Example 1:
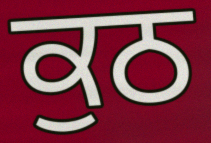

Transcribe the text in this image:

ਕੁਠ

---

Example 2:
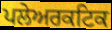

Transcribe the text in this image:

ਪਲੇਅਰਕਟਿਕ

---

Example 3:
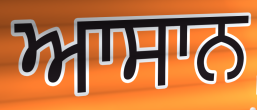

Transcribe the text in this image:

ਆਸਾਨ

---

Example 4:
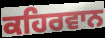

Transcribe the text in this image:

ਕਹਿਰਵਾਨ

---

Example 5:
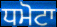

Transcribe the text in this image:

ਧਮੋਟਾ